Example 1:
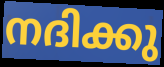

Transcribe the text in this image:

നദിക്കു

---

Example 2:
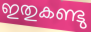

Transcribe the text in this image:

ഇതുകണ്ടു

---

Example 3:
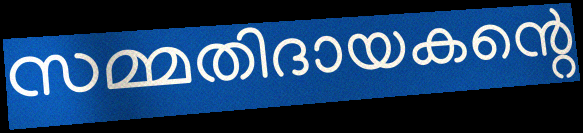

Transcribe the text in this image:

സമ്മതിദായകന്റെ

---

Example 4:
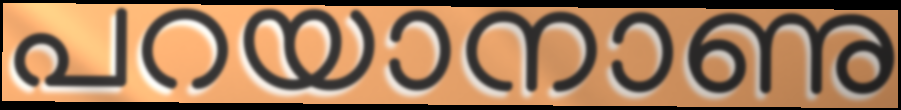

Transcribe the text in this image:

പറയാനാണു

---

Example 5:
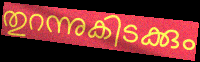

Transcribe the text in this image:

തുറന്നുകിടക്കും